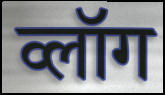
व्लॉग